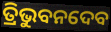
ତ୍ରିଭୁବନଦେବ